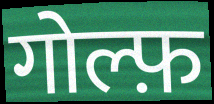
गोल्फ़